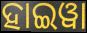
ହାଇୱା